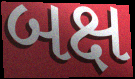
બક્ષ